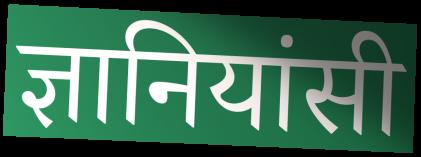
ज्ञानियांसी